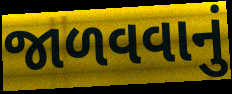
જાળવવાનું